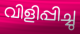
വിളിപ്പിച്ചു